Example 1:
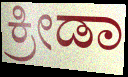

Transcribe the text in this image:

ಕ್ರೀಡಾ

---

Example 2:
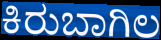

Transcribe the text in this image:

ಕಿರುಬಾಗಿಲ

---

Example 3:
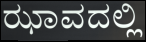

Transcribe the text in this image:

ಝಾವದಲ್ಲಿ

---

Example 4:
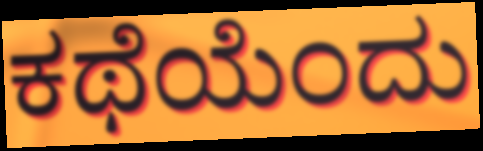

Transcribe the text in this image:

ಕಥೆಯೆಂದು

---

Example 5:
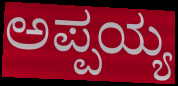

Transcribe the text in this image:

ಅಪ್ಪಯ್ಯ